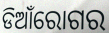
ଡିଆଁରୋଗର